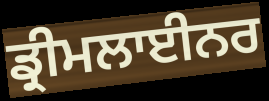
ਡ੍ਰੀਮਲਾਈਨਰ